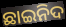
ଛାଇନିଦ